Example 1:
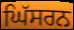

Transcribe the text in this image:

ਘਿੱਸਰਨ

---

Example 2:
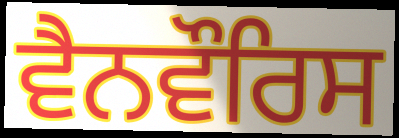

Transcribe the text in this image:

ਵੈਨਵੌਰਿਸ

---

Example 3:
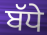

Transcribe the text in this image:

ਬੱਧੇ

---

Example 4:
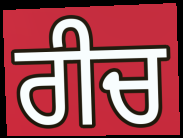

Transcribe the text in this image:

ਰੀਚ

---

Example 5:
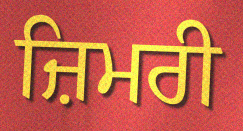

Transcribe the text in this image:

ਜ਼ਿਮਰੀ